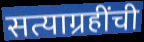
सत्याग्रहींची